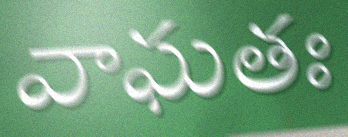
వాఘతః